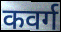
कवर्ग